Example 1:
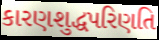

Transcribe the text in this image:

કારણશુદ્ધપરિણતિ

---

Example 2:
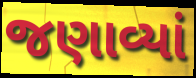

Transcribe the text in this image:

જણાવ્યાં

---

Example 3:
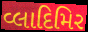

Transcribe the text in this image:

વ્લાદિમિર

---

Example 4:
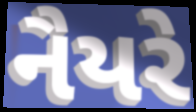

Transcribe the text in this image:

નૈયરે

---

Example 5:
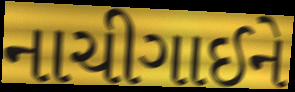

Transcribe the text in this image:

નાચીગાઈને